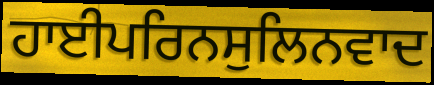
ਹਾਈਪਰਿਨਸੁਲਿਨਵਾਦ